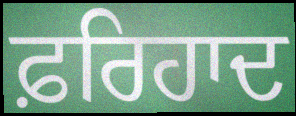
ਫ਼ਰਿਹਾਦ